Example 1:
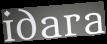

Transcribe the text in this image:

idara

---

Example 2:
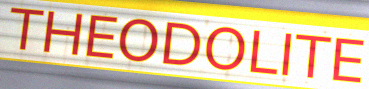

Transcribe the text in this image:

THEODOLITE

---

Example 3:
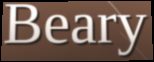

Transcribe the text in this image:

Beary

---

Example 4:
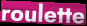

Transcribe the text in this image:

roulette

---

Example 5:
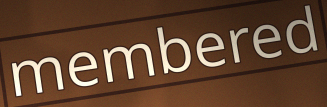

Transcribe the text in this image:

membered